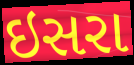
ઇસરા